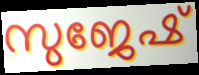
സുജേഷ്